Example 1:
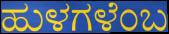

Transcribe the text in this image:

ಹುಳಗಳೆಂಬ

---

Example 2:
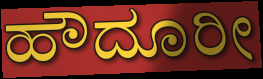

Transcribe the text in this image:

ಹೌದೂರೀ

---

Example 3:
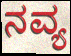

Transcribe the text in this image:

ನವ್ಯ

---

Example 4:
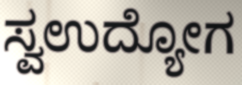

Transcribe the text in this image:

ಸ್ವಉದ್ಯೋಗ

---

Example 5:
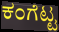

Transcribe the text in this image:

ಕಂಗೆಟ್ಟ